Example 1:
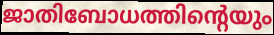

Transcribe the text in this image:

ജാതിബോധത്തിന്റെയും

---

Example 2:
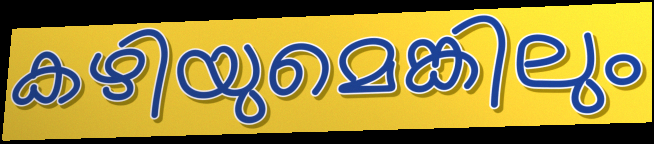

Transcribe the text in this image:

കഴിയുമെങ്കിലും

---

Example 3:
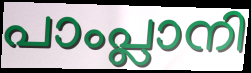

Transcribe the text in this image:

പാംപ്ലാനി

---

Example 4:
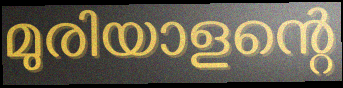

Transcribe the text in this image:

മുരിയാളന്റെ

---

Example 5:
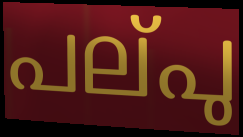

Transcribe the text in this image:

പല്‌പു